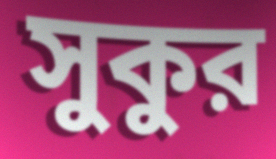
সুকুর